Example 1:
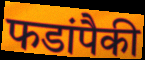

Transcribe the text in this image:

फडांपैकी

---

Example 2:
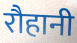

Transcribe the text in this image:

रौहानी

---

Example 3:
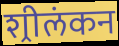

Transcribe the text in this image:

श्रीलंकन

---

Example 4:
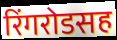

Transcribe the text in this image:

रिंगरोडसह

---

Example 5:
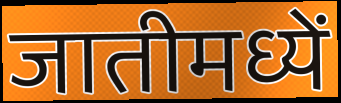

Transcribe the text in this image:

जातीमध्यें